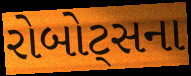
રોબોટ્સના